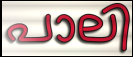
പാലി